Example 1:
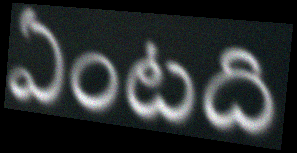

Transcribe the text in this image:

ఏంటది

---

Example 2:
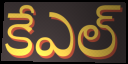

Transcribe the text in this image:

కేఎల్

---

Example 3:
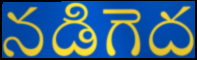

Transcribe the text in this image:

నడిగెద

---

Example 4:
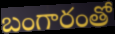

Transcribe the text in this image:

బంగారంతో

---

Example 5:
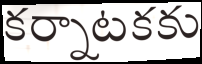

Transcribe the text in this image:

కర్నాటకకు